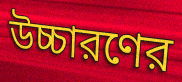
উচ্চারণের